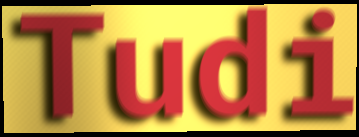
Tudi